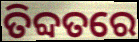
ତିବ୍ଦତରେ